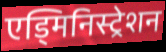
एड्मिनिस्ट्रेशन